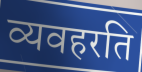
व्यवहरति